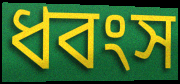
ধবংস